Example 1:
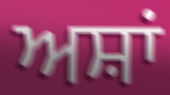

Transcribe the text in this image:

ਅਸ਼ਾਂ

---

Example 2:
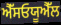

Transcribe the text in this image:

ਐੱਸਓਯੂਐੱਲ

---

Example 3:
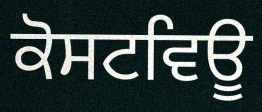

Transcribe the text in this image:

ਕੋਸਟਵਿਊ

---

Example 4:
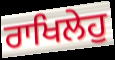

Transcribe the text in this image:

ਰਾਖਿਲੇਹੁ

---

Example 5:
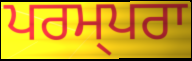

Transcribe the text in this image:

ਪਰਮ੍ਪਰਾ